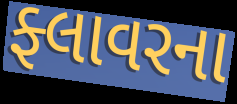
ફ્લાવરના